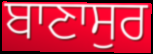
ਬਾਣਾਸੁਰ